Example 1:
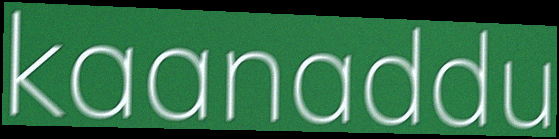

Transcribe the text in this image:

kaanaddu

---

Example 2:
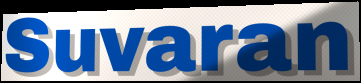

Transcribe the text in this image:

Suvaran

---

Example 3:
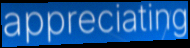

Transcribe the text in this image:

appreciating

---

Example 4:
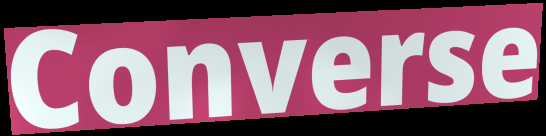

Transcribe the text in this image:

Converse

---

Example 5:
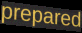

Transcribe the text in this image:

prepared